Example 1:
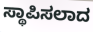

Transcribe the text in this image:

ಸ್ಥಾಪಿಸಲಾದ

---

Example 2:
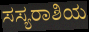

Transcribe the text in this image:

ಸಸ್ಯರಾಶಿಯ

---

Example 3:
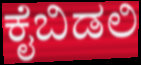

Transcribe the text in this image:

ಕೈಬಿಡಲಿ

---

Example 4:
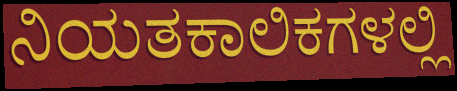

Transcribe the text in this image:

ನಿಯತಕಾಲಿಕಗಳಲ್ಲಿ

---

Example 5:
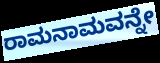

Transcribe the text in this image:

ರಾಮನಾಮವನ್ನೇ